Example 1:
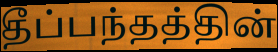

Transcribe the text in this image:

தீப்பந்தத்தின்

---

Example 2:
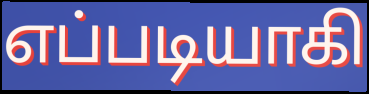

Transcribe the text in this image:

எப்படியாகி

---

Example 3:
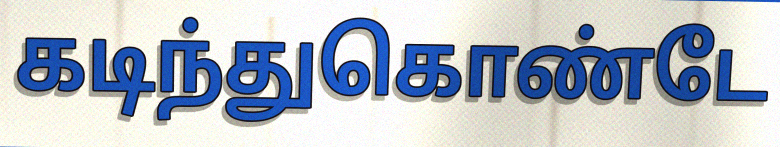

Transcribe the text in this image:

கடிந்துகொண்டே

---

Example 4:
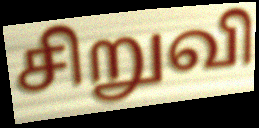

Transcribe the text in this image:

சிறுவி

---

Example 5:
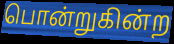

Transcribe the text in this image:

பொன்றுகின்ற